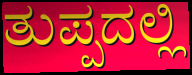
ತುಪ್ಪದಲ್ಲಿ